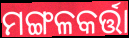
ମଙ୍ଗଳକର୍ତ୍ତା